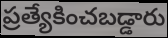
ప్రత్యేకించబడ్డారు